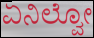
ಏನಿಲ್ವೋ